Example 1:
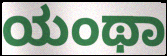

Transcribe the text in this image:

ಯಂಥಾ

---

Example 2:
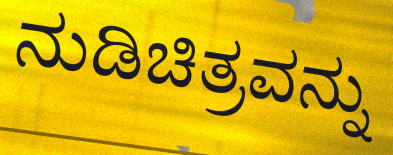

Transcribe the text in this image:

ನುಡಿಚಿತ್ರವನ್ನು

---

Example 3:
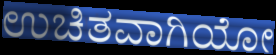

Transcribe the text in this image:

ಉಚಿತವಾಗಿಯೋ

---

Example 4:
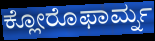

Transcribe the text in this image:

ಕ್ಲೋರೊಫಾರ್ಮ್ನ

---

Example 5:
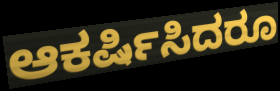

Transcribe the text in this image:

ಆಕರ್ಷಿಸಿದರೂ